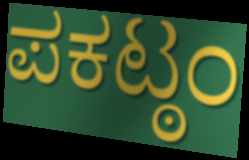
ಪಕಟ್ಠಂ